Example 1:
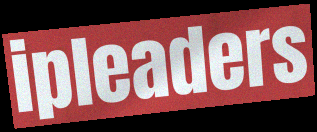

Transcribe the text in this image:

ipleaders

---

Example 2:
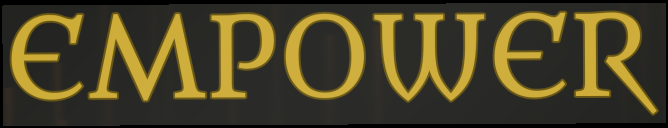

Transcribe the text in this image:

EMPOWER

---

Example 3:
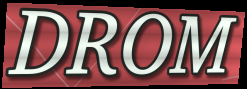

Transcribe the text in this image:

DROM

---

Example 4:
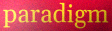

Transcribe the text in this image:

paradigm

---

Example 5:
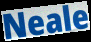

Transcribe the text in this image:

Neale